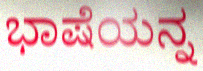
ಭಾಷೆಯನ್ನ